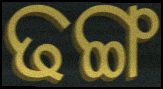
ଢଙ୍ଗ